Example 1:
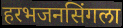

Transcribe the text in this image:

हरभजनसिंगला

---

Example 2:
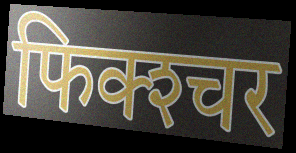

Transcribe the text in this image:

फिक्श्चर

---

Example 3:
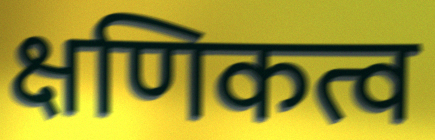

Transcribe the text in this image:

क्षणिकत्व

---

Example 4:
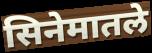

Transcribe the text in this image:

सिनेमातले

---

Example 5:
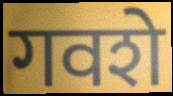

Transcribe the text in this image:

गवशे